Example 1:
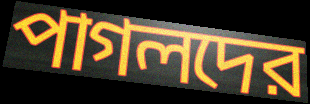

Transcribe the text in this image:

পাগলদের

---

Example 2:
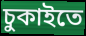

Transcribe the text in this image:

চুকাইতে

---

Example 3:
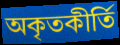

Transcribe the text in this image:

অকৃতকীর্তি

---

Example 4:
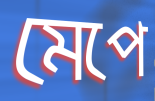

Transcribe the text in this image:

মেপে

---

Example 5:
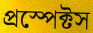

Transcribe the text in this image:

প্রস্পেক্টস